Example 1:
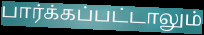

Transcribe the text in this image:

பார்க்கப்பட்டாலும்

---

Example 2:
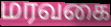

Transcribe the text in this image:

மரவகை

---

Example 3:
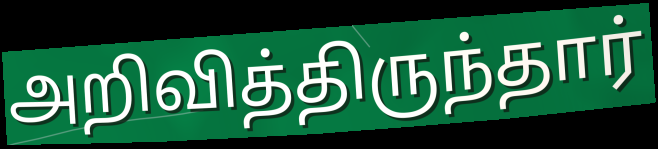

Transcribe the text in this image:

அறிவித்திருந்தார்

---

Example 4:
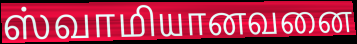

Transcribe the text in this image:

ஸ்வாமியானவனை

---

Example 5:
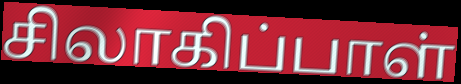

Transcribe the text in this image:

சிலாகிப்பாள்